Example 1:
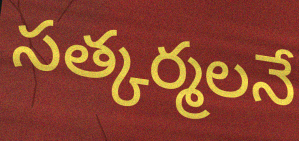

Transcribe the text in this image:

సత్కర్మలనే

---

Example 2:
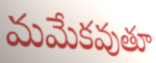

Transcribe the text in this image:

మమేకవుతూ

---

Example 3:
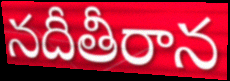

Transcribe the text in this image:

నదీతీరాన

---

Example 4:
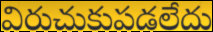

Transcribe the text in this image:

విరుచుకుపడలేదు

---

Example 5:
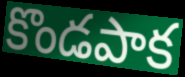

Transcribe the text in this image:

కొండపాక